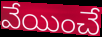
వేయించే